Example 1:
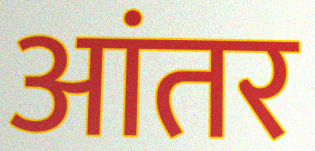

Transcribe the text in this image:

आंतर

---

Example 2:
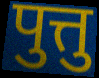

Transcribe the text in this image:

पुत्तु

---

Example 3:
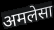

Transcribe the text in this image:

अमलेसा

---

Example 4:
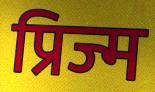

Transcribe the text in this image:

प्रिज्म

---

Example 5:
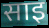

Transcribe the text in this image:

साइ